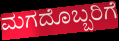
ಮಗದೊಬ್ಬರಿಗೆ